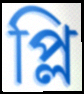
প্লি